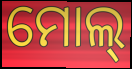
ମୋଲ୍